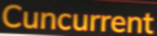
Cuncurrent